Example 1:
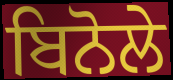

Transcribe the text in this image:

ਬਿਨੋਲੇ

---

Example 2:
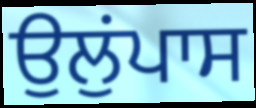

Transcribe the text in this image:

ਉਲੁਂਪਾਸ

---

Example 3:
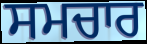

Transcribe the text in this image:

ਸਮਚਾਰ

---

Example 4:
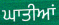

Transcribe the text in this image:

ਘਾਤੀਆਂ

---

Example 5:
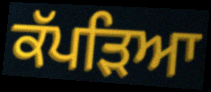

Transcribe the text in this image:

ਕੱਪੜਿਆ